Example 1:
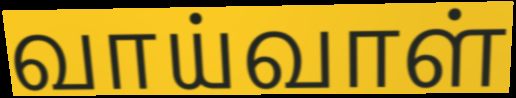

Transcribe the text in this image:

வாய்வாள்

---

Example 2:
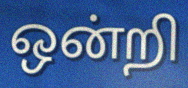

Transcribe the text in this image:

ஒன்றி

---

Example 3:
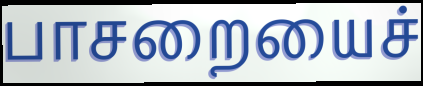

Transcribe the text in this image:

பாசறையைச்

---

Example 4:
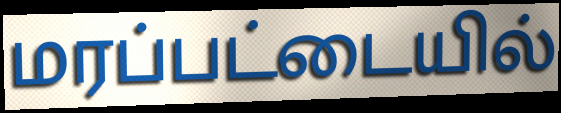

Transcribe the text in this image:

மரப்பட்டையில்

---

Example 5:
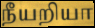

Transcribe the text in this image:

நீயறியா